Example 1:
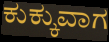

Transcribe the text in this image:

ಕುಕ್ಕುವಾಗ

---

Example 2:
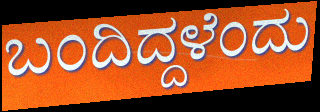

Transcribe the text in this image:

ಬಂದಿದ್ದಳೆಂದು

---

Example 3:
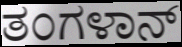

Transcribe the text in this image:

ತಂಗಳಾನ್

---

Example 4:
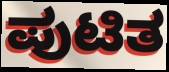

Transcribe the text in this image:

ಪುಟಿತ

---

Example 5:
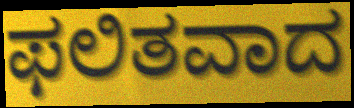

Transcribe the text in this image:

ಫಲಿತವಾದ